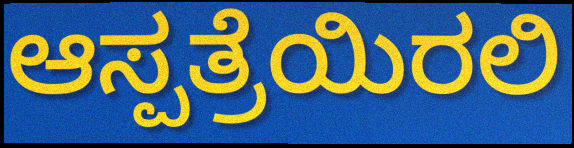
ಆಸ್ಪತ್ರೆಯಿರಲಿ